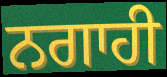
ਨਗਾਹੀ